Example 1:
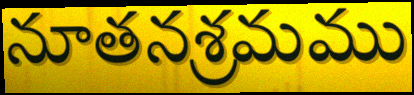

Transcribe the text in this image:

నూతనశ్రమము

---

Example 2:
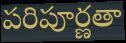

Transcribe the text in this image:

పరిపూర్ణతా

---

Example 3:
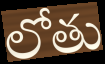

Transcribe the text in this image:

లోతు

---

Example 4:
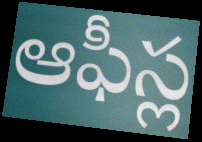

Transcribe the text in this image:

ఆఫీస్ల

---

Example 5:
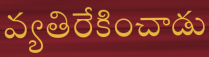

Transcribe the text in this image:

వ్యతిరేకించాడు